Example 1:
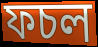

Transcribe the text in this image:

ফচল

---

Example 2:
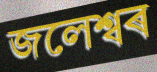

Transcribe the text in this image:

জলেশ্বৰ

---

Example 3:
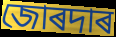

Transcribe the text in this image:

জোৰদাৰ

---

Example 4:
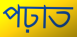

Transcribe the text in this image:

পঢ়াত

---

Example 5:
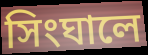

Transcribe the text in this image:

সিংঘালে